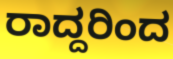
ರಾದ್ದರಿಂದ